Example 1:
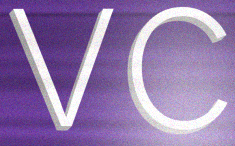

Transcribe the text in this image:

vc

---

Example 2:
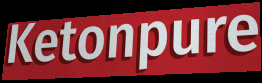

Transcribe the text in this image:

Ketonpure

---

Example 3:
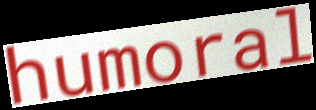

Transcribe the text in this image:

humoral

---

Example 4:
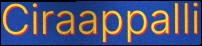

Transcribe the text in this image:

Ciraappalli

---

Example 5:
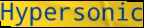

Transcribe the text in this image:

Hypersonic